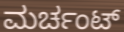
ಮರ್ಚಂಟ್